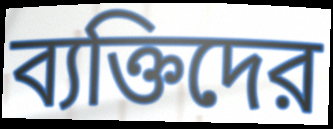
ব্যক্তিদের